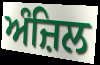
ਅੰਜ਼ਿਲ